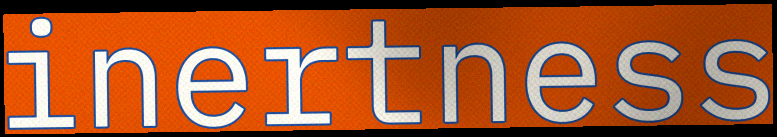
inertness